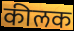
कीलक